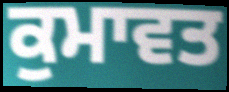
ਕੁਮਾਵਤ